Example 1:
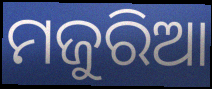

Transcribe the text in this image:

ମଜୁରିଆ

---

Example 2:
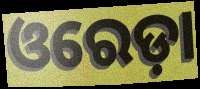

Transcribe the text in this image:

ଓରେଡ଼ା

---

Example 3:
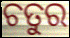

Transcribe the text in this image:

ଚତୁର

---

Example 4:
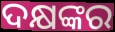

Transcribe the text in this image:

ଦକ୍ଷଙ୍କର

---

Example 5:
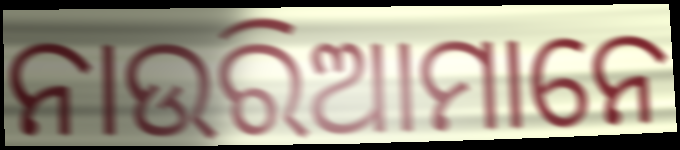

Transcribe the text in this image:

ନାଉରିଆମାନେ